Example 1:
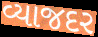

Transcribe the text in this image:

વ્યાજદર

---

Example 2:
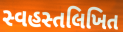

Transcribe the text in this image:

સ્વહસ્તલિખિત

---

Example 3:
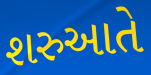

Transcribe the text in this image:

શરુઆતે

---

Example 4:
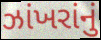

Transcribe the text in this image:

ઝાંખરાંનું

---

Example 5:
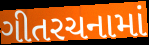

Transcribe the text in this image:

ગીતરચનામાં